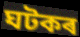
ঘটকৰ